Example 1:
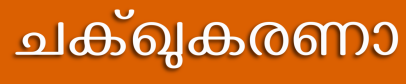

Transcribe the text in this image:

ചക്ഖുകരണാ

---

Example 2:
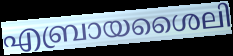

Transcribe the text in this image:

എബ്രായശൈലി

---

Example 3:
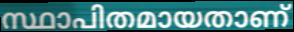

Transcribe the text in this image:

സ്ഥാപിതമായതാണ്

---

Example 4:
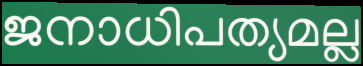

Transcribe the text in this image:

ജനാധിപത്യമല്ല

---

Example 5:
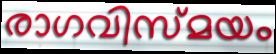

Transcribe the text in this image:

രാഗവിസ്മയം